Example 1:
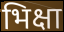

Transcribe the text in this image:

भिक्षा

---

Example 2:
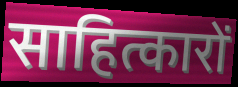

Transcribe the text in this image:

साहित्कारों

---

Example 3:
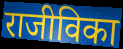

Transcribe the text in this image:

राजीविका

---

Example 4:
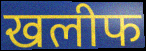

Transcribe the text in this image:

खलीफ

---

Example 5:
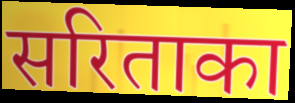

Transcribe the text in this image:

सरिताका